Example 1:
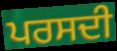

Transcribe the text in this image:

ਪਰਸਦੀ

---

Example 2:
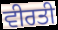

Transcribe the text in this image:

ਵੀਰਤੀ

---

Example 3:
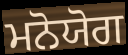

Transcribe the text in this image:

ਮਨੋਯੋਗ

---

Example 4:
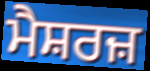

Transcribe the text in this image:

ਮੈਸ਼ਰਜ਼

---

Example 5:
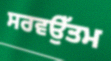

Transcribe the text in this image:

ਸਰਵਉੱਤਮ